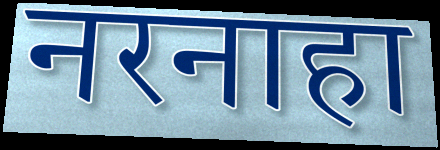
नरनाहा